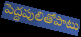
పెద్దపులితోపాటు